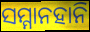
ସମ୍ମାନହାନି